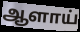
ஆளாய்